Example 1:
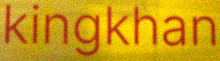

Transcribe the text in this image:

kingkhan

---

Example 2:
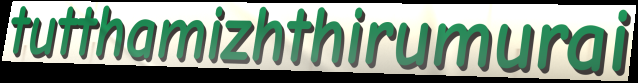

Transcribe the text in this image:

tutthamizhthirumurai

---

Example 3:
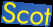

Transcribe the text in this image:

Scot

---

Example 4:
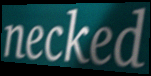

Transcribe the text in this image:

necked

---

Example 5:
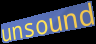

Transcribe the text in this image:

unsound